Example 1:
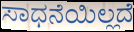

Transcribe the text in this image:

ಸಾಧನೆಯಿಲ್ಲದೆ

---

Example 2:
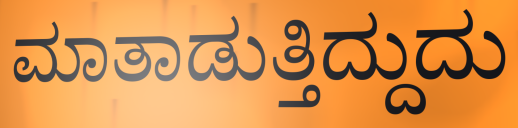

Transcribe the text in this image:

ಮಾತಾಡುತ್ತಿದ್ದುದು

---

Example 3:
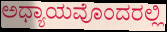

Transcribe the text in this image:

ಅಧ್ಯಾಯವೊಂದರಲ್ಲಿ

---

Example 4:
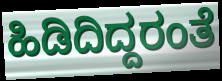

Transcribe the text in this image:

ಹಿಡಿದಿದ್ದರಂತೆ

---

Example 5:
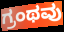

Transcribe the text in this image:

ಗ್ರಂಥವು